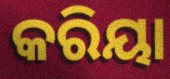
କରିୟା